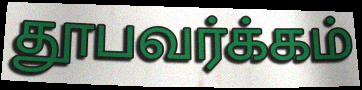
தூபவர்க்கம்